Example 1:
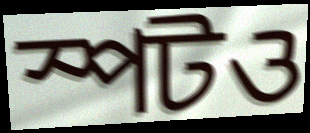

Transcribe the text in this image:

স্পটও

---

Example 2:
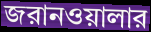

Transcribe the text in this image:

জরানওয়ালার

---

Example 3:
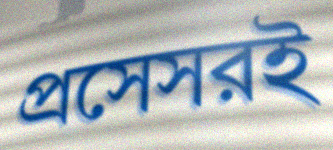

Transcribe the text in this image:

প্রসেসরই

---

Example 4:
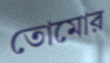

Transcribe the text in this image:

তোমোর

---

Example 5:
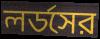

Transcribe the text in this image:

লর্ডসের